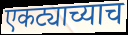
एकट्याच्याच